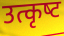
उत्कृष्‍ट